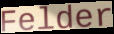
Felder